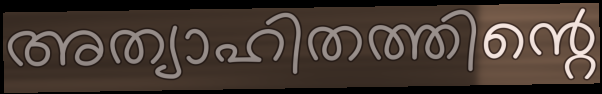
അത്യാഹിതത്തിന്റെ